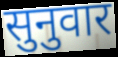
सुनुवार